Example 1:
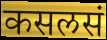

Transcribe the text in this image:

कसलसं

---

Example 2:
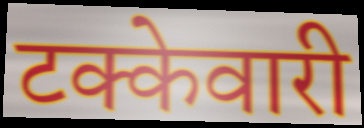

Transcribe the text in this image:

टक्केवारी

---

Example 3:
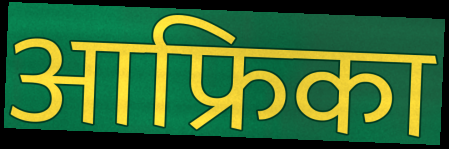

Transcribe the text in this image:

आफ्रिका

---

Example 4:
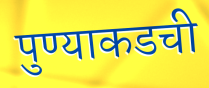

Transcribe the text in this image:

पुण्याकडची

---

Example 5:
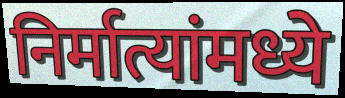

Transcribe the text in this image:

निर्मात्यांमध्ये